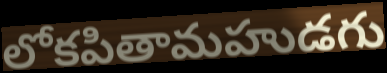
లోకపితామహుడగు